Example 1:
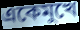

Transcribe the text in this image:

একেমুখে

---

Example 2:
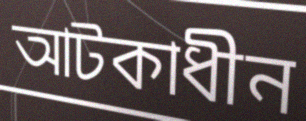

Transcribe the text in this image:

আটকাধীন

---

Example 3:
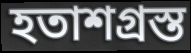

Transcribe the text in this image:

হতাশগ্ৰস্ত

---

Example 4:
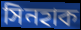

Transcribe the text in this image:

সিনহাক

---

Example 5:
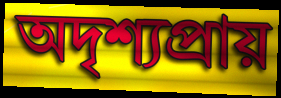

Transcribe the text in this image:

অদৃশ্যপ্ৰায়